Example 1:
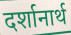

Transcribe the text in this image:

दर्शानार्थ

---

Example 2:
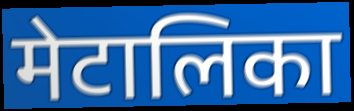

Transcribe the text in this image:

मेटालिका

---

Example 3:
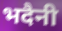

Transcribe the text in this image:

भदैनी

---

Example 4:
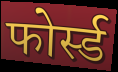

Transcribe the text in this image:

फोर्स्ड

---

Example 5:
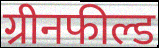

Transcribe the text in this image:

ग्रीनफील्ड